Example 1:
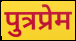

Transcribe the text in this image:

पुत्रप्रेम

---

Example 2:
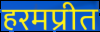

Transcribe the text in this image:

हरमप्रीत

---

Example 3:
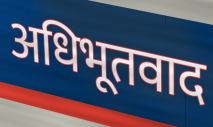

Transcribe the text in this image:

अधिभूतवाद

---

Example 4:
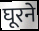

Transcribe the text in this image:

घूरने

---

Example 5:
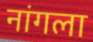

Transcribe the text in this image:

नांगला